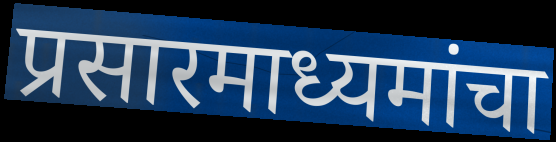
प्रसारमाध्यमांचा